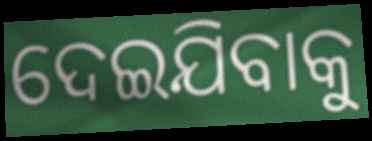
ଦେଇଯିବାକୁ